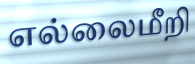
எல்லைமீறி